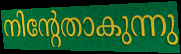
നിന്റേതാകുന്നു